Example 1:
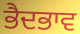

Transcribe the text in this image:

ਭੈਦਭਾਵ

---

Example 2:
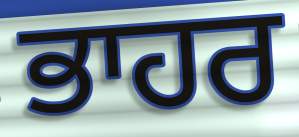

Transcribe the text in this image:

ਭਾਹਰ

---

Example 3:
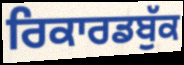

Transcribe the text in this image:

ਰਿਕਾਰਡਬੁੱਕ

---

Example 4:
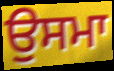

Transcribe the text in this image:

ਉਸਮਾ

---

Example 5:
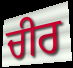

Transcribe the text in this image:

ਚੀਰ